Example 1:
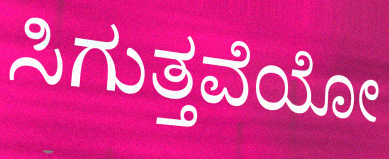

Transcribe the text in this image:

ಸಿಗುತ್ತವೆಯೋ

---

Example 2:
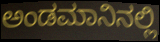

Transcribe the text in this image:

ಅಂಡಮಾನಿನಲ್ಲಿ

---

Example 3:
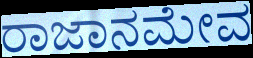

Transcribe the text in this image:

ರಾಜಾನಮೇವ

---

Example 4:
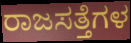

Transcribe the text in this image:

ರಾಜಸತ್ತೆಗಳ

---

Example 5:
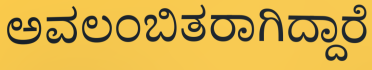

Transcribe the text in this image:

ಅವಲಂಬಿತರಾಗಿದ್ದಾರೆ